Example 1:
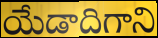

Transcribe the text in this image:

యేడాదిగాని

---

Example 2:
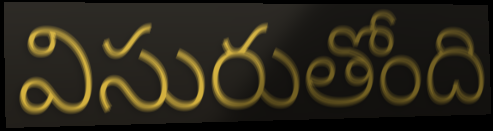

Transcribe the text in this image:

విసురుతోంది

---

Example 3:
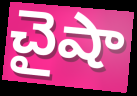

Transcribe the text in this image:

చైషా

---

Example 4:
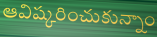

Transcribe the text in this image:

ఆవిష్కరించుకున్నాం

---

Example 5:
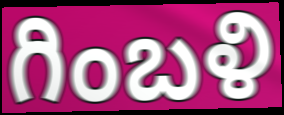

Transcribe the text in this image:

గింబళి